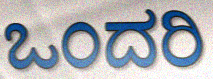
ಒಂದರಿ